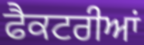
ਫੈਕਟਰੀਆਂ